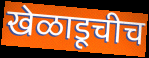
खेळाडूचीच